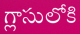
గ్లాసులోకి